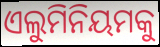
ଏଲୁମିନିୟମକୁ